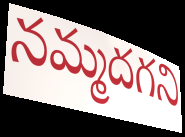
నమ్మదగని